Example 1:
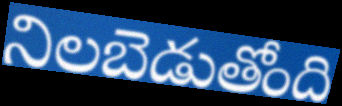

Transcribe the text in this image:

నిలబెడుతోంది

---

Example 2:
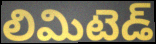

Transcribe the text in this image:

లిమిటెడ్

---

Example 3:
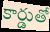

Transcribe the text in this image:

కార్డుతో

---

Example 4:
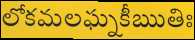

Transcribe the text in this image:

లోకమలఘ్నకీఋతిః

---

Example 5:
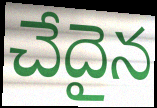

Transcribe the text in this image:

చేదైన